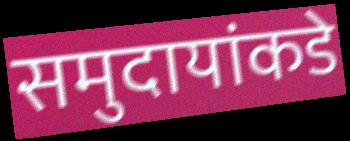
समुदायांकडे